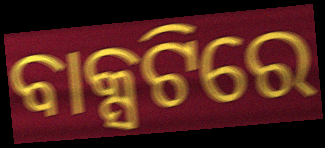
ବାକ୍ସଟିରେ